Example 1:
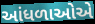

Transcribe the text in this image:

આંધળાઓએ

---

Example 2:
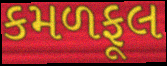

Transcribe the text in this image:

કમળફૂલ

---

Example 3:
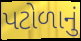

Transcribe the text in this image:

પટોળાનું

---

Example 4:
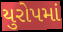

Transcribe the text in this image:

યુરોપમાં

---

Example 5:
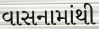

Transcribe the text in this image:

વાસનામાંથી